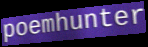
poemhunter